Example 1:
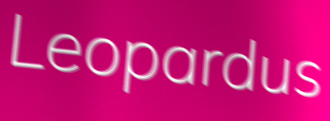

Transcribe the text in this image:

Leopardus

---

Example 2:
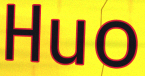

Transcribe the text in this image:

Huo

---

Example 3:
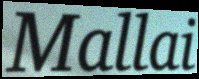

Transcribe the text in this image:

Mallai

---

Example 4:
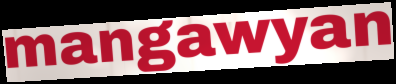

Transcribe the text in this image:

mangawyan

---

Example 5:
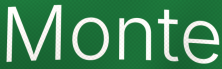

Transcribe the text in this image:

Monte